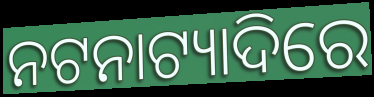
ନଟନାଟ୍ୟାଦିରେ